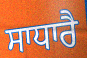
ਸਾਧਾਰੈ